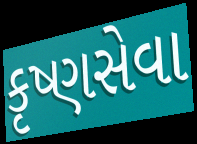
કૃષ્ણસેવા